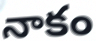
నాకం